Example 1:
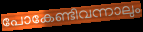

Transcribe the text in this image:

പോകേണ്ടിവന്നാലും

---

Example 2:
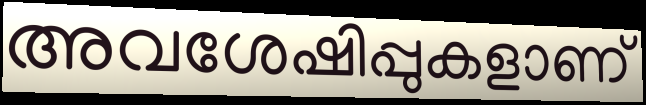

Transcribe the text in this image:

അവശേഷിപ്പുകളാണ്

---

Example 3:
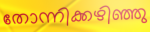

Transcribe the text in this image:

തോന്നിക്കഴിഞ്ഞു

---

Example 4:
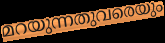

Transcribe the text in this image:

മറയുന്നതുവരെയും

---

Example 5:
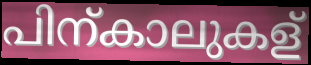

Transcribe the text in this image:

പിന്കാലുകള്